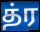
த்ர